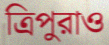
ত্রিপুরাও